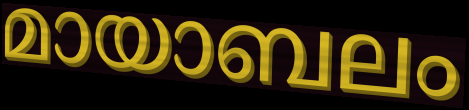
മായാബലം